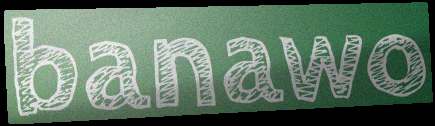
banawo